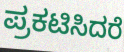
ಪ್ರಕಟಿಸಿದರೆ